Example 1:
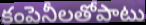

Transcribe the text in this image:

కంపెనీలతోపాటు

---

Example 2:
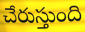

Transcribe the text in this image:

చేరుస్తుంది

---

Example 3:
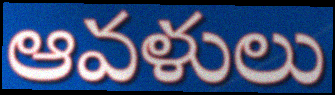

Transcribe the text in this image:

ఆవళులు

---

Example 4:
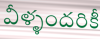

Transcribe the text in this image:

వీళ్ళందరికీ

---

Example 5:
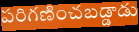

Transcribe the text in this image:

పరిగణించబడ్డాడు